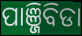
ପାଞ୍ଜିବିଡା